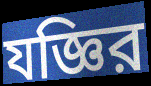
যজ্ঞির